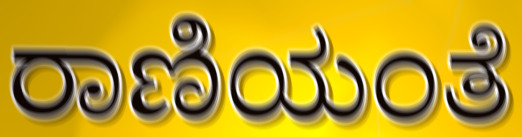
ರಾಣಿಯಂತೆ